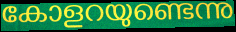
കോളറയുണ്ടെന്നു